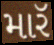
મારૅ